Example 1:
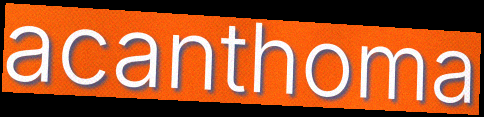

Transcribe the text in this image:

acanthoma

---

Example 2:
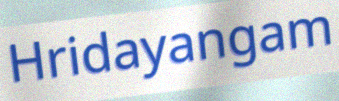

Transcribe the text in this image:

Hridayangam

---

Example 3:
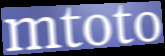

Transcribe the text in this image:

mtoto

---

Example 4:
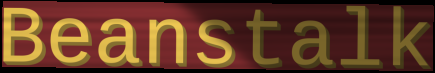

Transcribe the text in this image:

Beanstalk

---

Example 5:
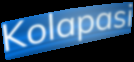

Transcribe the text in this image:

Kolapasi